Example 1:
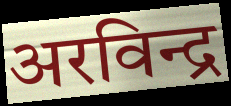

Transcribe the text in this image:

अरविन्द्र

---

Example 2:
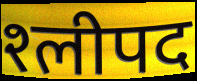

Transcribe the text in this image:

श्लीपद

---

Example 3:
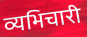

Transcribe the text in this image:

व्यभिचारी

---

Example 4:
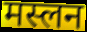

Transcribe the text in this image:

मस्लन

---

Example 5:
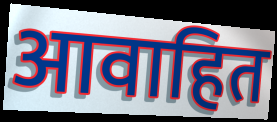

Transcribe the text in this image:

आवाहित